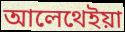
আলেথেইয়া